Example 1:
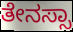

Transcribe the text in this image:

ತೇನಸ್ಸಾ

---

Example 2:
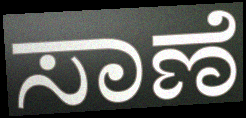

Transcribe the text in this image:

ಸಾಣೆ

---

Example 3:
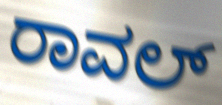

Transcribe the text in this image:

ರಾವಲ್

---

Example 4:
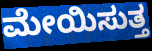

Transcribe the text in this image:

ಮೇಯಿಸುತ್ತ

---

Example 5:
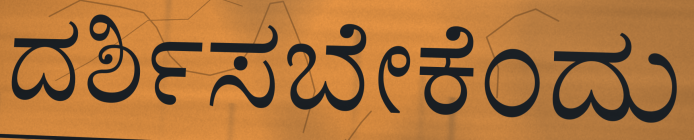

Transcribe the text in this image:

ದರ್ಶಿಸಬೇಕೆಂದು